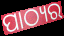
ପାଠ୍ୟର